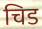
चिड